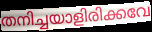
തനിച്ചയാളിരിക്കവേ